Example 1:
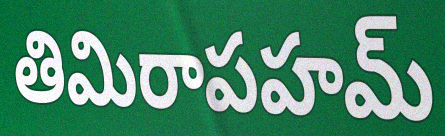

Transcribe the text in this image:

తిమిరాపహమ్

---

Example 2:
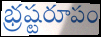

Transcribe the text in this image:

భ్రష్టరూపం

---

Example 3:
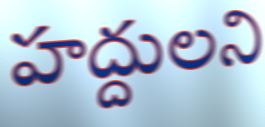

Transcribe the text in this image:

హద్దులని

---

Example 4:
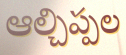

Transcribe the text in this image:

ఆల్చిప్పల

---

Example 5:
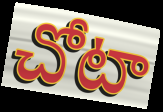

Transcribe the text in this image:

చోటా